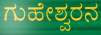
ಗುಹೇಶ್ವರನ